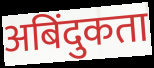
अबिंदुकता